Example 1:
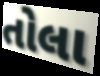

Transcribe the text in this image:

તોલા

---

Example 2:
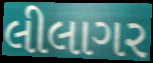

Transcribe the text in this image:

લીલાગર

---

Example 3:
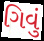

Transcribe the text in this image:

ગિવું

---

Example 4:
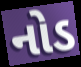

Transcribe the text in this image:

નોડ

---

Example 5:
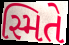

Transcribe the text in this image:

સ્મિતે